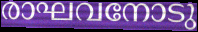
രാഘവനോടു